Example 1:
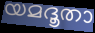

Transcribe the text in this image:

യമദൂതാ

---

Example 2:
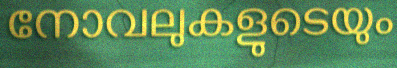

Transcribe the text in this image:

നോവലുകളുടെയും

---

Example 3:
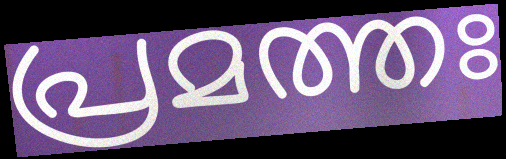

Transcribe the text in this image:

പ്രമത്തഃ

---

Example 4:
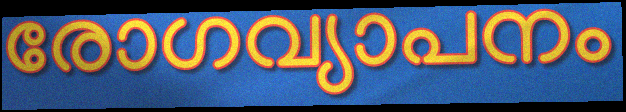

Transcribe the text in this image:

രോഗവ്യാപനം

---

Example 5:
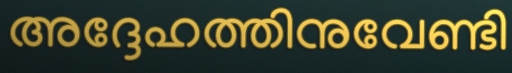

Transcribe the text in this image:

അദ്ദേഹത്തിനുവേണ്ടി